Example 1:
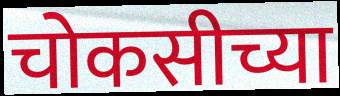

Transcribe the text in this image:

चोकसीच्या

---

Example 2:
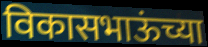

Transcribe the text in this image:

विकासभाऊंच्या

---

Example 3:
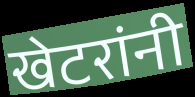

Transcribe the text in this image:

खेटरांनी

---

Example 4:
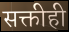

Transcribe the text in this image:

सक्तीही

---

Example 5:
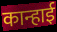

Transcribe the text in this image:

कान्हाई